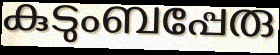
കുടുംബപ്പേരു